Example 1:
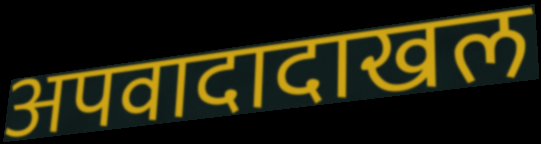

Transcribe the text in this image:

अपवादादाखल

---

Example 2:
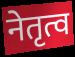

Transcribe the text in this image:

नेतृत्‍व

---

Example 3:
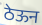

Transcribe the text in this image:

ठेऊन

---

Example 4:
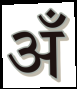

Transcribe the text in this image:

अँ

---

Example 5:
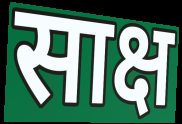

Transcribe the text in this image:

साक्ष